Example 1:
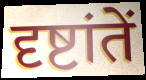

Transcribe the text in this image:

दृष्टांतें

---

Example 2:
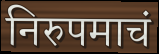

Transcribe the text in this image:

निरुपमाचं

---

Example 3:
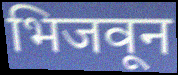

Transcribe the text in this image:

भिजवून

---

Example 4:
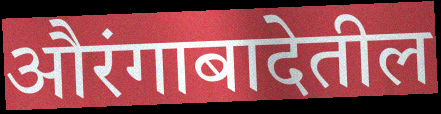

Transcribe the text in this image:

औरंगाबादेतील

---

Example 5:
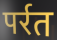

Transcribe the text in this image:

पर्रत